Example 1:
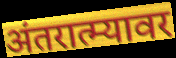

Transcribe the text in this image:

अंतरात्म्यावर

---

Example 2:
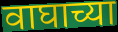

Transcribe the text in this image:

वाघाच्या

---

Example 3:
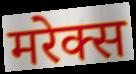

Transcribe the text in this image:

मरेक्स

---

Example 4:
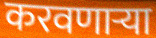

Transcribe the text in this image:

करवणाऱ्या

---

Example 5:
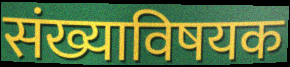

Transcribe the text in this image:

संख्याविषयक